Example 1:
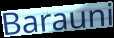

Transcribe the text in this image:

Barauni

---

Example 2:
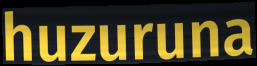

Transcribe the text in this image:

huzuruna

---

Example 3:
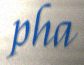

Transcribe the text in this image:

pha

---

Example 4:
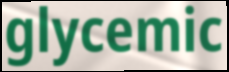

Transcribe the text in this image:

glycemic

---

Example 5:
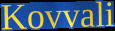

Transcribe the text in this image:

Kovvali